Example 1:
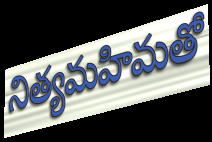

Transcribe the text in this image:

నిత్యమహిమతో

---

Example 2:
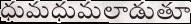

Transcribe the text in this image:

ధుమధుమలాడుతూ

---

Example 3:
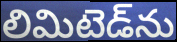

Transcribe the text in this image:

లిమిటెడ్‌ను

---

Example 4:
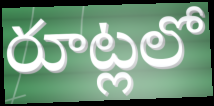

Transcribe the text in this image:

రూట్లలో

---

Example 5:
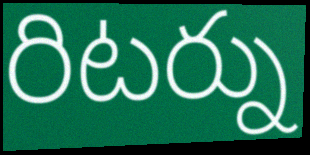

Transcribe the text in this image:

రిటర్ను